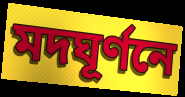
মদঘূর্ণনে